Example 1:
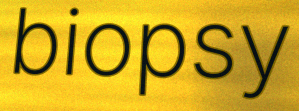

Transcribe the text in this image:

biopsy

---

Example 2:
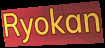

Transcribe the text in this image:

Ryokan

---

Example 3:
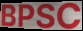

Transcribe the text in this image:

BPSC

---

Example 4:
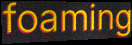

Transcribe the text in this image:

foaming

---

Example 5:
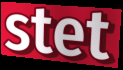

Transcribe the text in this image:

stet